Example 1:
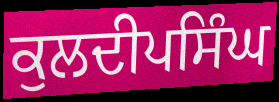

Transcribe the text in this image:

ਕੁਲਦੀਪਸਿੰਘ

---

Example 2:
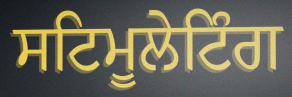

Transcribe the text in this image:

ਸਟਿਮੂਲੇਟਿੰਗ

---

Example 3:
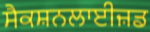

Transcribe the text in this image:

ਸੈਕਸ਼ਨਲਾਈਜ਼ਡ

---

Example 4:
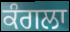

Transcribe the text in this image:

ਕੰਗਲਾ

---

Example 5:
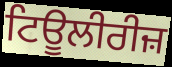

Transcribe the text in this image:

ਟਿਊਲੀਰੀਜ਼